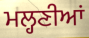
ਮਲ੍ਹਣੀਆਂ